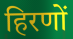
हिरणों